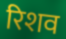
रिशव